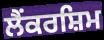
ਲੈਂਕਰਸ਼ਿਮ